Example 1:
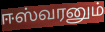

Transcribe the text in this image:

ஈஸ்வரனும்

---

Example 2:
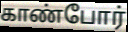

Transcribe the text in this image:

காண்போர்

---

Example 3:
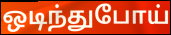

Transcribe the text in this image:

ஒடிந்துபோய்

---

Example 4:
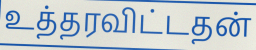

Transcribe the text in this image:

உத்தரவிட்டதன்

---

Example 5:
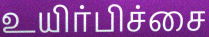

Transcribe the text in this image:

உயிர்பிச்சை